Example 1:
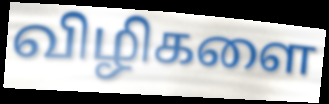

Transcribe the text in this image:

விழிகளை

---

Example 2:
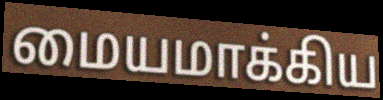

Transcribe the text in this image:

மையமாக்கிய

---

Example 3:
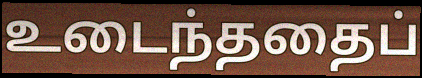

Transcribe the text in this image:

உடைந்ததைப்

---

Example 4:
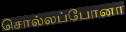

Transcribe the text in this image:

சொல்லப்போனா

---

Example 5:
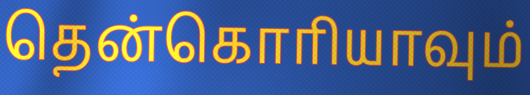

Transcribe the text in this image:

தென்கொரியாவும்